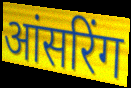
आंसरिंग